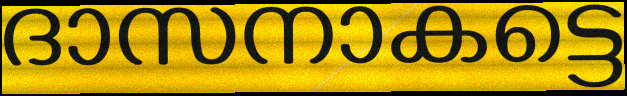
ദാസനാകട്ടെ